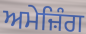
ਅਮੇਜ਼ਿੰਗ